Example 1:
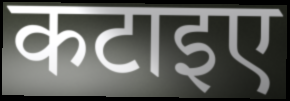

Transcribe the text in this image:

कटाइए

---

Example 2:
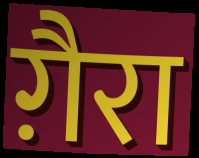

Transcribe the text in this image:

ग़ैरा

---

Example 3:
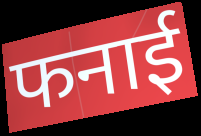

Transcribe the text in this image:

फनाई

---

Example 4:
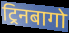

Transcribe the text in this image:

ट्रिनबागो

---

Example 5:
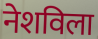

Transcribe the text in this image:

नेशविला